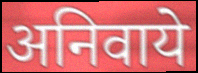
अनिवाये